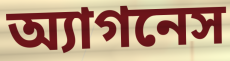
অ্যাগনেস